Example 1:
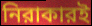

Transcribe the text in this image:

নিরাকারই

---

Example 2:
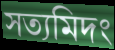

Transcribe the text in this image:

সত্যমিদং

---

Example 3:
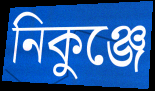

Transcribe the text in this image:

নিকুঞ্জে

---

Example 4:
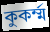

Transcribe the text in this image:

কুকর্ম্ম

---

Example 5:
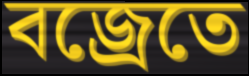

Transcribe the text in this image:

বজ্রেতে